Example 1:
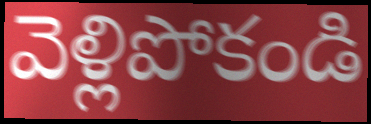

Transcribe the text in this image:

వెళ్లిపోకండి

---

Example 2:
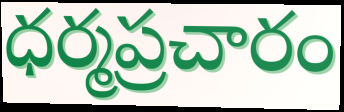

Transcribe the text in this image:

ధర్మప్రచారం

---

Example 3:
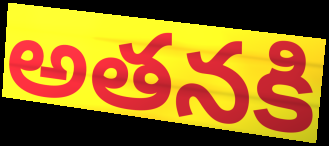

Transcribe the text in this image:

అతనకి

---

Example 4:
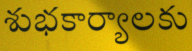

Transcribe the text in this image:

శుభకార్యాలకు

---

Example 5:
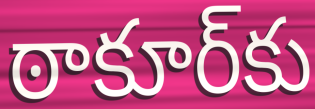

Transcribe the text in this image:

ఠాకూర్‌కు